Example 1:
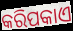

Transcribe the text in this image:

କରିପକାଏ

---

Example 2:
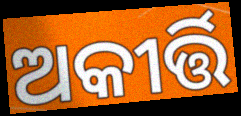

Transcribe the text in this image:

ଅକୀର୍ତ୍ତି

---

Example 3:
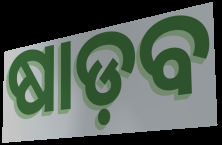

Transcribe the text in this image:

ଷାଡ଼ବ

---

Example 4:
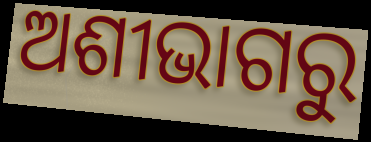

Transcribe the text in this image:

ଅଶୀଭାଗରୁ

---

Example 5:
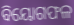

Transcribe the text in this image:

ବିୟୋଗଫଳ